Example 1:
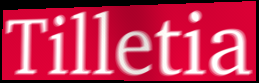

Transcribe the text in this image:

Tilletia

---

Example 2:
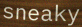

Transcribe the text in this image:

sneaky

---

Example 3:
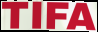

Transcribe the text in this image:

TIFA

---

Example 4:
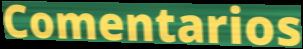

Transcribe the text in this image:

Comentarios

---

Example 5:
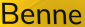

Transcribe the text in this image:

Benne